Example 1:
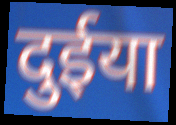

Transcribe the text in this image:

दुईया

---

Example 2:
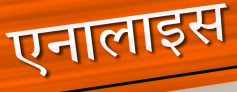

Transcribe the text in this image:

एनालाइस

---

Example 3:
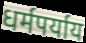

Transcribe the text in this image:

धर्मपर्याय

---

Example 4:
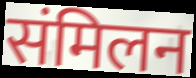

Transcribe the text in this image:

संमिलन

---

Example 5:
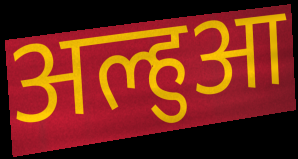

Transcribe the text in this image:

अल्हुआ